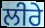
ਲੀਰੇ